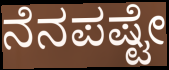
ನೆನಪಷ್ಟೇ